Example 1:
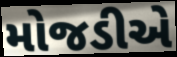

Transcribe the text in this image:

મોજડીએ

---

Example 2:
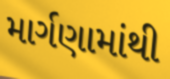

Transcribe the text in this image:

માર્ગણામાંથી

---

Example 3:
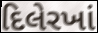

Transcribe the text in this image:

દિલેરખાં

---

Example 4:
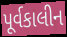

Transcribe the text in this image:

પૂર્વકાલીન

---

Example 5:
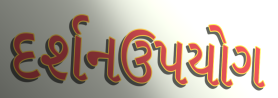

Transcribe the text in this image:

દર્શનઉપયોગ